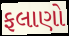
ફલાણો